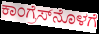
ಕಾಂಗ್ರೆಸ್‌ನೊಳಗೆ